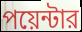
পয়েন্টার